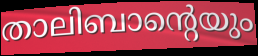
താലിബാന്റെയും